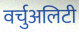
वर्चुअलिटी